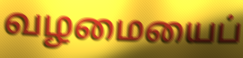
வழமையைப்